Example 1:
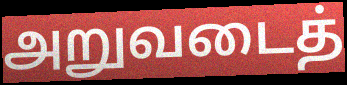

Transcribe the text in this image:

அறுவடைத்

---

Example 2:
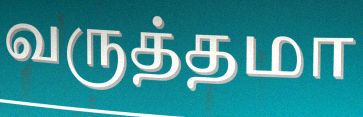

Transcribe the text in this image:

வருத்தமா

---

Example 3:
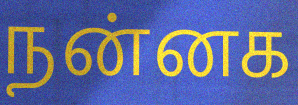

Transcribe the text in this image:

நன்னக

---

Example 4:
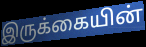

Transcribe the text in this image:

இருக்கையின்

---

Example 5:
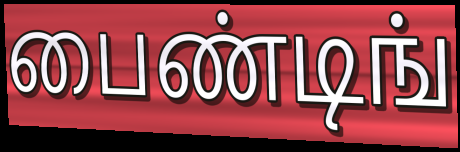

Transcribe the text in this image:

பைண்டிங்